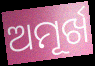
ଅମୂର୍ଖ